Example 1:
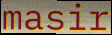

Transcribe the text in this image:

masir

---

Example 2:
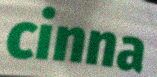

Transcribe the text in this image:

cinna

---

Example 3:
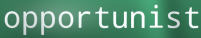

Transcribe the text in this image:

opportunist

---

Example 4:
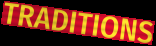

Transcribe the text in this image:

TRADITIONS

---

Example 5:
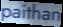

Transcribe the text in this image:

paithan